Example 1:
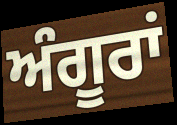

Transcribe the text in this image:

ਅੰਗੂਰਾਂ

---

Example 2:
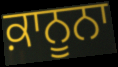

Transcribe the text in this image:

ਕ਼ਾਨੂਨਾ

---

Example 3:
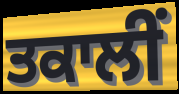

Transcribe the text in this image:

ਤਕਾਲੀਂ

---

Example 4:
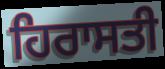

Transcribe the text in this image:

ਹਿਰਾਸਤੀ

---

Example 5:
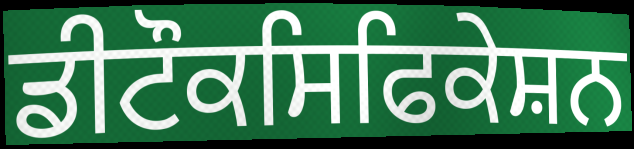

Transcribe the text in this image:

ਡੀਟੌਕਸਿਫਿਕੇਸ਼ਨ